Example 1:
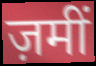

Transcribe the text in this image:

ज़मीं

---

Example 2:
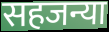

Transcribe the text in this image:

सहजन्या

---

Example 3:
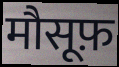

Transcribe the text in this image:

मौसूफ़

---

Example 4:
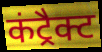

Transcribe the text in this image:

कंट्रैक्ट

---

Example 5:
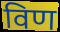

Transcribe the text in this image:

विण